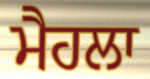
ਮੈਹਲਾ